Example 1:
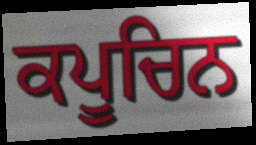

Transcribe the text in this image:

ਕਪੂਚਿਨ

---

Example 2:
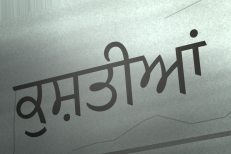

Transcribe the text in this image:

ਕੁਸ਼ਤੀਆਂ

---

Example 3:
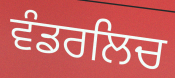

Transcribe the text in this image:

ਵੰਡਰਲਿਚ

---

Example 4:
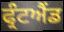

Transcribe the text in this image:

ਫ੍ਰੰਟਐਂਡ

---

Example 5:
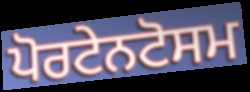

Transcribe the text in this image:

ਪੋਰਟੇਨਟੋਸਮ